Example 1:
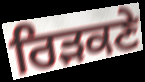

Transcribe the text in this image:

ਰਿੜਕਣੇ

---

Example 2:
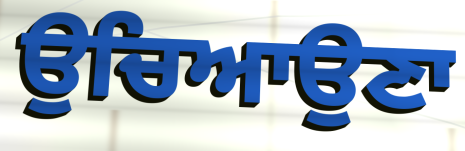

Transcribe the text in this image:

ਉਚਿਆਉਣਾ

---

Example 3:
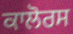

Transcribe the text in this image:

ਕਾਲੋਰਸ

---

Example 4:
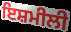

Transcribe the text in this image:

ਇਸ਼ਮੀਲੀ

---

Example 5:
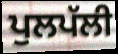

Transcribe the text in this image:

ਪੁਲਪੱਲੀ